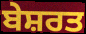
ਬੇਸ਼ਰਤ